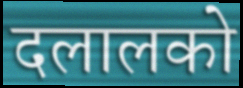
दलालको